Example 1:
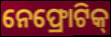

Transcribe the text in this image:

ନେଫ୍ରୋଟିକ୍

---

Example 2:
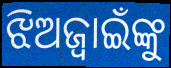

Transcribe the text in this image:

ଝିଅଜ୍ୱାଇଁଙ୍କୁ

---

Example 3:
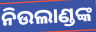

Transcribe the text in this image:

ନିଉଲାଣ୍ଡଙ୍କ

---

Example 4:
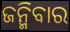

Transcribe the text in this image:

ଜନ୍ମିବାର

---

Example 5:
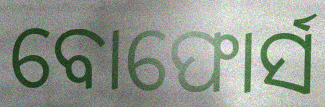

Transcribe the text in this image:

ବୋଫୋର୍ସ